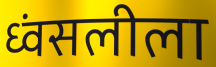
ध्वंसलीला